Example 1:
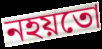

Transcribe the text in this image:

নহয়তো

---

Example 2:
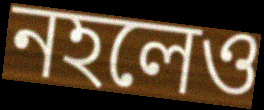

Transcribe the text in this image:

নহলেও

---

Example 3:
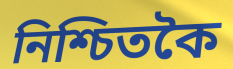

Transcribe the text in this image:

নিশ্চিতকৈ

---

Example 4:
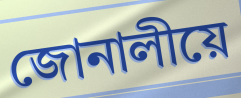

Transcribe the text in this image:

জোনালীয়ে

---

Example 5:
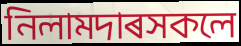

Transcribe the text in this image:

নিলামদাৰসকলে